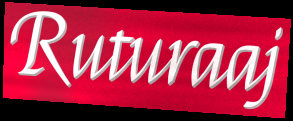
Ruturaaj